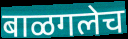
बाळगलेच